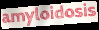
amyloidosis